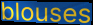
blouses